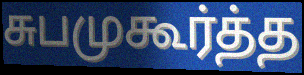
சுபமுகூர்த்த